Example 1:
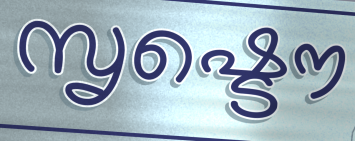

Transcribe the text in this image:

സൃഷ്ടൌ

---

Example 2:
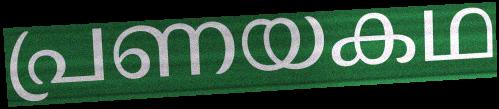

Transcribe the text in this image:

പ്രണയകഥ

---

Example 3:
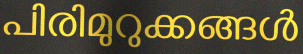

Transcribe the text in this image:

പിരിമുറുക്കങ്ങൾ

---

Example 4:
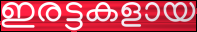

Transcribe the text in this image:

ഇരട്ടകളായ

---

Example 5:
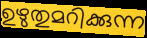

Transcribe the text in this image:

ഉഴുതുമറിക്കുന്ന